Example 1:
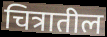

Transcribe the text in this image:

चित्रातील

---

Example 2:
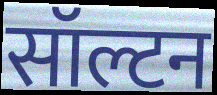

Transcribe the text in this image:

सॉल्टन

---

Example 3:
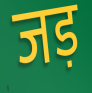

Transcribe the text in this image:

जड़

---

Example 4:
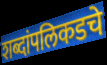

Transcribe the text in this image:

शब्दांपलिकडचे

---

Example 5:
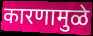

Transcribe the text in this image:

कारणामुळे